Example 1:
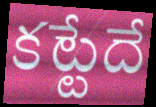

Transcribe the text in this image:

కట్టేదే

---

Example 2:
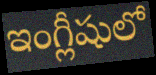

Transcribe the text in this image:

ఇంగ్లీషులో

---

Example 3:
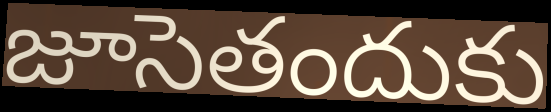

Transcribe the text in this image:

జూసెతందుకు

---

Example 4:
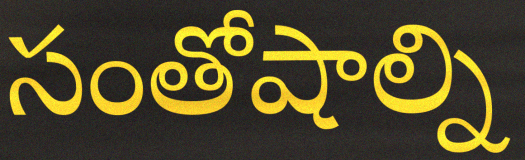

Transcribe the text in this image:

సంతోషాల్ని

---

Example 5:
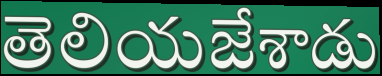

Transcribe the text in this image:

తెలియజేశాడు